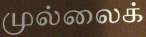
முல்லைக்